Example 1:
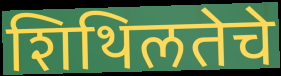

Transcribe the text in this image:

शिथिलतेचे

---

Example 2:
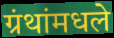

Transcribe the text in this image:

ग्रंथांमधले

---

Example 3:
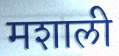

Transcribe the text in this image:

मशाली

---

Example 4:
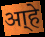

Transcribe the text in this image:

आ्हे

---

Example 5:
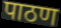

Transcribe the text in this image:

पाठण